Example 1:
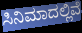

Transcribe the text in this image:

ಸಿನಿಮಾದಲ್ಲಿವೆ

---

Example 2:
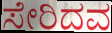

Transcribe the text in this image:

ಸೇರಿದವ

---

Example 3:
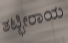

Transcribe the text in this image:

ತಟ್ಟೀರಾಯ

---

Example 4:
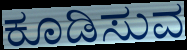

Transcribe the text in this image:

ಕೂಡಿಸುವ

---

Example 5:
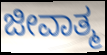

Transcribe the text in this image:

ಜೀವಾತ್ಮ